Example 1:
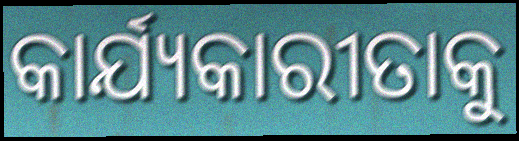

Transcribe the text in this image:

କାର୍ଯ୍ୟକାରୀତାକୁ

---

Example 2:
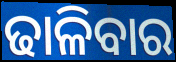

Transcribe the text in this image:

ଢାଳିବାର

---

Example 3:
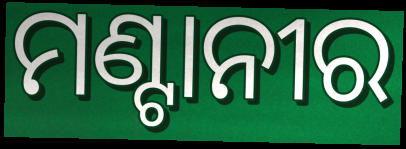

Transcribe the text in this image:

ମଣ୍ଟାନୀର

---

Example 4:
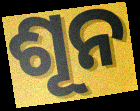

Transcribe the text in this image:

ଶୂନ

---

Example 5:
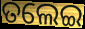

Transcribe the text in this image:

ତଲେଇ